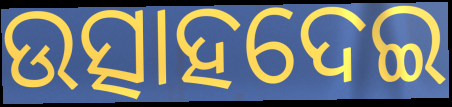
ଉତ୍ସାହଦେଇ